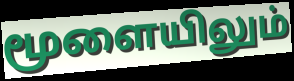
மூளையிலும்